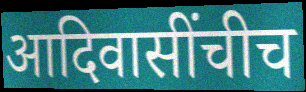
आदिवासींचीच